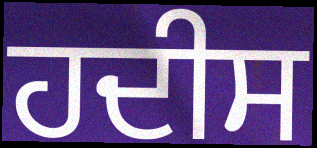
ਹਦੀਸ